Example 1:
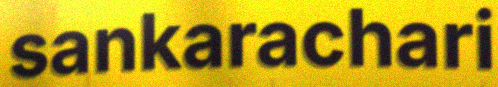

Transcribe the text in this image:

sankarachari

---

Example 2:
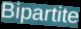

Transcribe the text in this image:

Bipartite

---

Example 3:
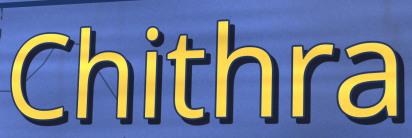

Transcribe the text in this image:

Chithra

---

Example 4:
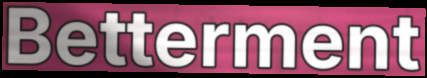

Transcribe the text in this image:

Betterment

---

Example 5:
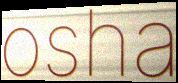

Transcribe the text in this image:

osha